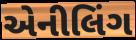
એનીલિંગ